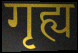
गृह्य